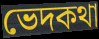
ভেদকথা